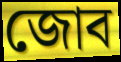
জোব